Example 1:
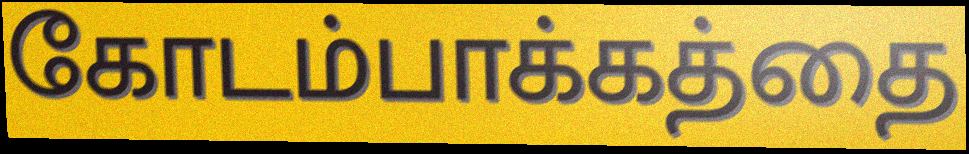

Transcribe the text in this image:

கோடம்பாக்கத்தை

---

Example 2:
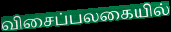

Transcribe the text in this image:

விசைப்பலகையில்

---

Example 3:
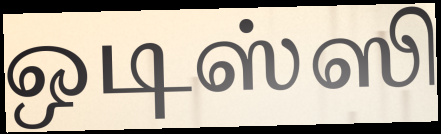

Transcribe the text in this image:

ஒடிஸ்ஸி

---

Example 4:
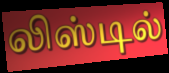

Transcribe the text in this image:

லிஸ்டில்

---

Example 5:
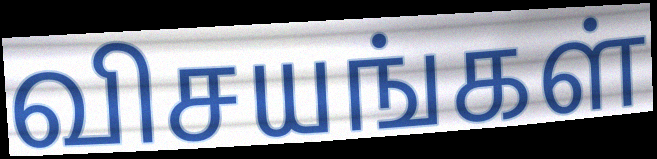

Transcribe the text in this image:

விசயங்கள்